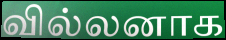
வில்லனாக